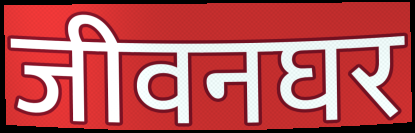
जीवनघर